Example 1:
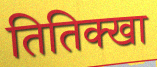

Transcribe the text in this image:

तितिक्खा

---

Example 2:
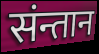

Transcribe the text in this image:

संन्तान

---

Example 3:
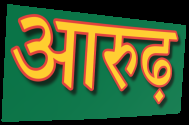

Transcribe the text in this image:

आरुढ़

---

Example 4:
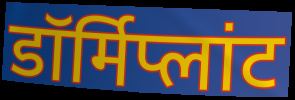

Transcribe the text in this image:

डॉर्मिप्लांट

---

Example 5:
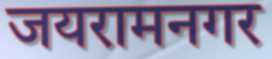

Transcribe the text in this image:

जयरामनगर